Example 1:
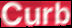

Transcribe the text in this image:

Curb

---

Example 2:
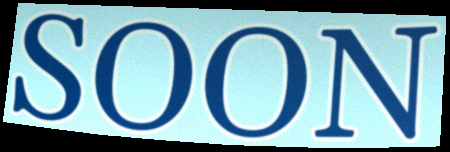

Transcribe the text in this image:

SOON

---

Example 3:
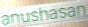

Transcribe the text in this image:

anushasan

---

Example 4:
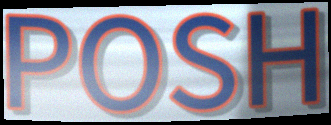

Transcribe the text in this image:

POSH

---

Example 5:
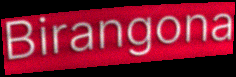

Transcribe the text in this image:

Birangona